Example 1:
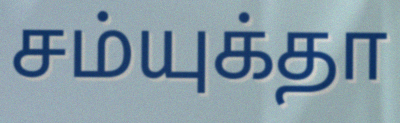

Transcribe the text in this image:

சம்யுக்தா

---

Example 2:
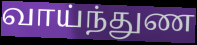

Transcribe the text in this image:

வாய்ந்துண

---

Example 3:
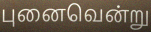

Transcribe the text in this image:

புனைவென்று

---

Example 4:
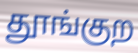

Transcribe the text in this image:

தூங்குற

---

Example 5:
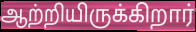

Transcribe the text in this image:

ஆற்றியிருக்கிறார்